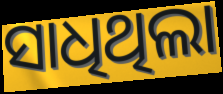
ସାଧିଥିଲା